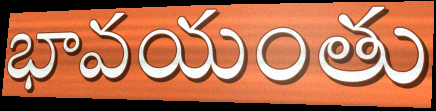
భావయంతు